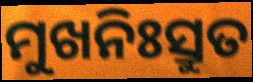
ମୁଖନିଃସ୍ରୁତ